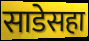
साडेसहा